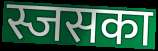
स्जसका